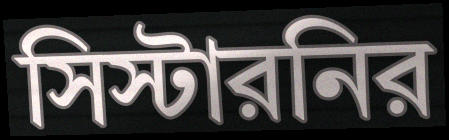
সিস্টারনির